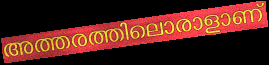
അത്തരത്തിലൊരാളാണ്